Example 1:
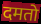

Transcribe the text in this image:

दमतो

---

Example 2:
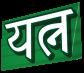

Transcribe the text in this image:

यत्न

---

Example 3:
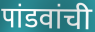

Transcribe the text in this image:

पांडवांची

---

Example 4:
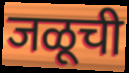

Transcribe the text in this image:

जळूची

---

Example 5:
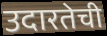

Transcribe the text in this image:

उदारतेची